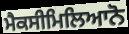
ਮੈਕਸੀਮਿਲਿਆਨੋ